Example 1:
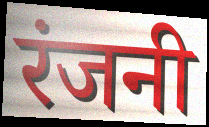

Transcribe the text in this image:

रंजनी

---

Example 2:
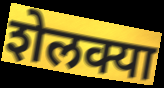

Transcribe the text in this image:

शेलक्या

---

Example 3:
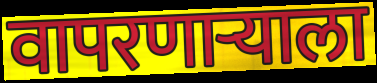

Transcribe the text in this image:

वापरणार्‍याला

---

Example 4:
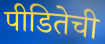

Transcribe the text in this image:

पीडितेची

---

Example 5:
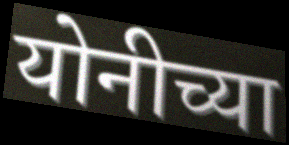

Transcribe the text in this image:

योनीच्या